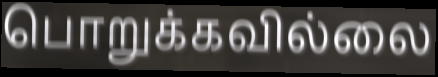
பொறுக்கவில்லை